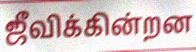
ஜீவிக்கின்றன